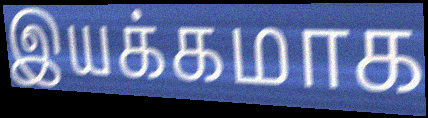
இயக்கமாக